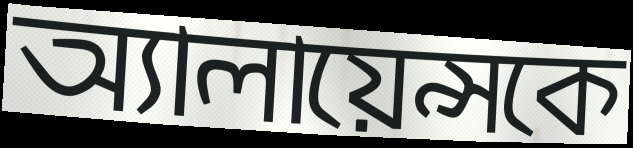
অ্যালায়েন্সকে